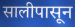
सालीपासून